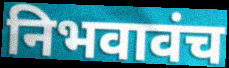
निभवावंच